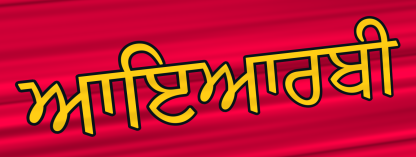
ਆਇਆਰਬੀ